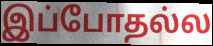
இப்போதல்ல